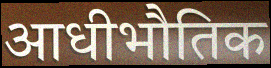
आधीभौतिक